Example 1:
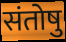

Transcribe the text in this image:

संतोषु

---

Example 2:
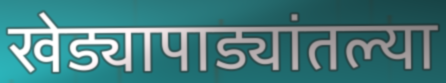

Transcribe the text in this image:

खेड्यापाड्यांतल्या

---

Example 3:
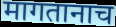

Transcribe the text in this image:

मागतानाच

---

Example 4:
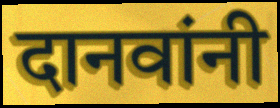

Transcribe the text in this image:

दानवांनी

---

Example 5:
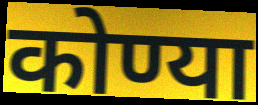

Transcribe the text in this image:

कोण्या